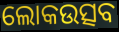
ଲୋକଉତ୍ସବ